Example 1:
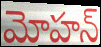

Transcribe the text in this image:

మోహన్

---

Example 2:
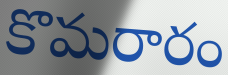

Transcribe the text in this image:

కొమరారం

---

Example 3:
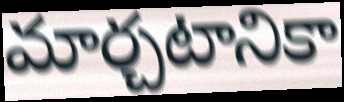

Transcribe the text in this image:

మార్చటానికా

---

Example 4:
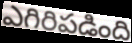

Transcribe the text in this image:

ఎగిరిపడింది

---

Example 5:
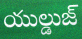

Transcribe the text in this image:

యుల్డుజ్